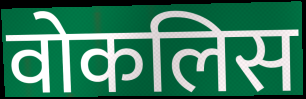
वोकलिस